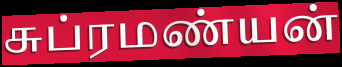
சுப்ரமண்யன்